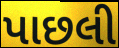
પાછલી